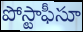
పోస్టాఫీసూ